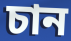
চান